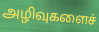
அழிவுகளைச்